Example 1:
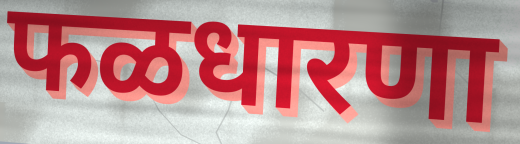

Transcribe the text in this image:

फळधारणा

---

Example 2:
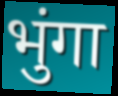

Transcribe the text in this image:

भुंगा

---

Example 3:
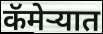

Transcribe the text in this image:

कॅमेऱ्यात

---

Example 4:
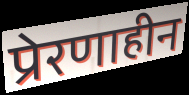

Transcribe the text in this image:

प्रेरणाहीन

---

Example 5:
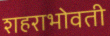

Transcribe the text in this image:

शहराभोवती